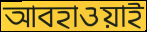
আবহাওয়াই